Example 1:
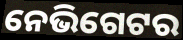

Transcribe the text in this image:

ନେଭିଗେଟର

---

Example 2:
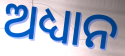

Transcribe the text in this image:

ଅଧ୍ୟାନ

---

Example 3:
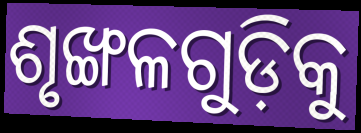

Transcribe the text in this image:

ଶୃଙ୍ଖଳଗୁଡ଼ିକୁ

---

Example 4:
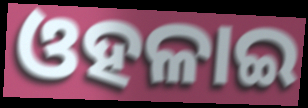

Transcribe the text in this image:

ଓହଳାଇ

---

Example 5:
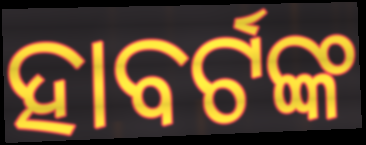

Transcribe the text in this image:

ହାବର୍ଟଙ୍କ